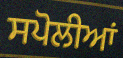
ਸਪੋਲੀਆਂ